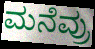
ಮನೆವ್ರು